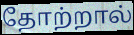
தோற்றால்